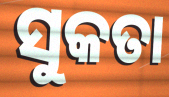
ସୁକତା